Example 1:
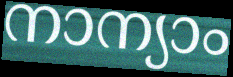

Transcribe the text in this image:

നാന്യാം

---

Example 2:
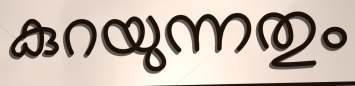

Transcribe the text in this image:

കുറയുന്നതും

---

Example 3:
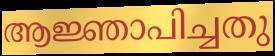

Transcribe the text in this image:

ആജ്ഞാപിച്ചതു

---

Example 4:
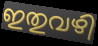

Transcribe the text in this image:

ഇതുവഴി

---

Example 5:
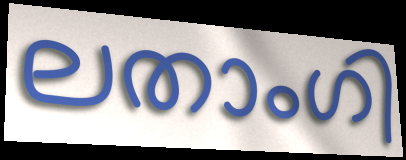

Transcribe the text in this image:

ലതാംഗി